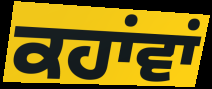
ਕਹਾਂਵਾਂ